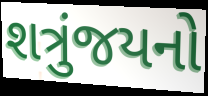
શત્રુંજયનો